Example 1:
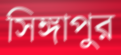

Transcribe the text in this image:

সিঙ্গাপুর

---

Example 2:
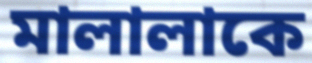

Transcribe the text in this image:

মালালাকে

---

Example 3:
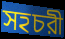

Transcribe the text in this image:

সহচরী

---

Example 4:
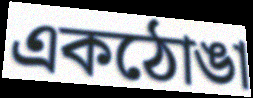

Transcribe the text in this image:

একঠোঙা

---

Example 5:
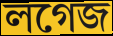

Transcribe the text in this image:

লগেজ